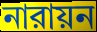
নারায়ন